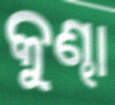
କୁଣ୍ଢା